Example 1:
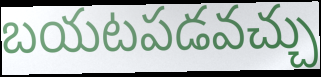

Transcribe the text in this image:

బయటపడవచ్చు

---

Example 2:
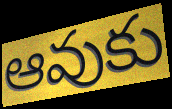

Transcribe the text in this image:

ఆవుకు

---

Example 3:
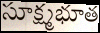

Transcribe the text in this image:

సూక్ష్మభూత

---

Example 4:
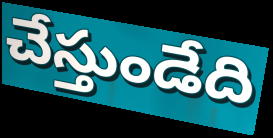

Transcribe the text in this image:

చేస్తుండేది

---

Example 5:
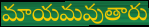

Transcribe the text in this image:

మాయమవుతారు